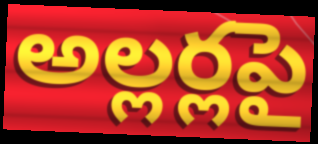
అల్లర్లపై